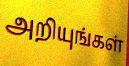
அறியுங்கள்